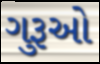
ગુરૂઓ